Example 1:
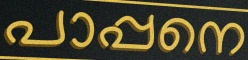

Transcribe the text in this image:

പാപ്പനെ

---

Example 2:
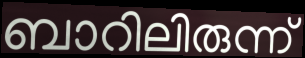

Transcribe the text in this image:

ബാറിലിരുന്ന്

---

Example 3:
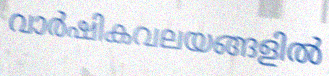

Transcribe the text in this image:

വാർഷികവലയങ്ങളിൽ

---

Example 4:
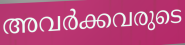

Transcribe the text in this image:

അവർക്കവരുടെ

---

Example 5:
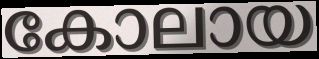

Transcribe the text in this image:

കോലായ